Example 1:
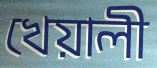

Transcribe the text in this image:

খেয়ালী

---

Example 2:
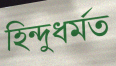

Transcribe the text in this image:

হিন্দুধৰ্মত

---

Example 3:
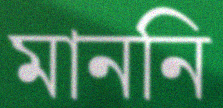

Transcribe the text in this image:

মাননি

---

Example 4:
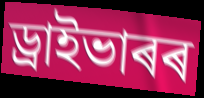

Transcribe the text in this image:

ড্ৰাইভাৰৰ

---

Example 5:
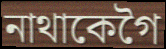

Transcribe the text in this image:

নাথাকেগৈ